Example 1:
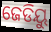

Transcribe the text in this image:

ଜେଡିୟୁ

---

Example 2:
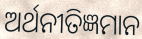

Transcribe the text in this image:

ଅର୍ଥନୀତିଜ୍ଞମାନ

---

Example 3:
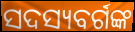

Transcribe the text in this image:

ସଦସ୍ୟବର୍ଗଙ୍କ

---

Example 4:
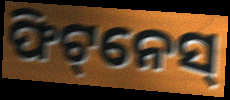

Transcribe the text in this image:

ଫିଟ୍‌ନେସ୍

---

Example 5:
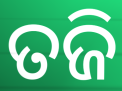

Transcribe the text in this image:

ତଜି